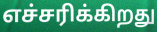
எச்சரிக்கிறது